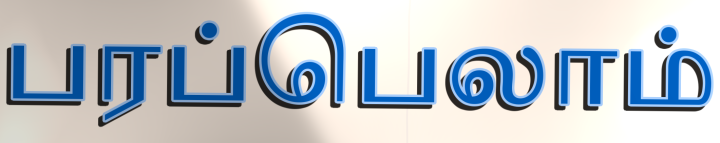
பரப்பெலாம்